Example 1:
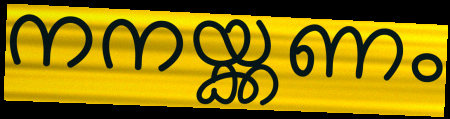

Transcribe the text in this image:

നനയ്ക്കണം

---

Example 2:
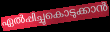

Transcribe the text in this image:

ഏൽപ്പിച്ചുകൊടുക്കാൻ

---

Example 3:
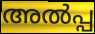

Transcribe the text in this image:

അൽപ്പ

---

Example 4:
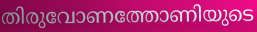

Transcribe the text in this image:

തിരുവോണത്തോണിയുടെ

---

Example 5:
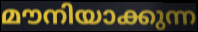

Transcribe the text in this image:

മൗനിയാക്കുന്ന